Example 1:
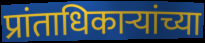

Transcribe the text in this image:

प्रांताधिकाऱ्यांच्या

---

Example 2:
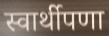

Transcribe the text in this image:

स्वार्थीपणा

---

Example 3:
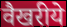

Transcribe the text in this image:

वैखरीये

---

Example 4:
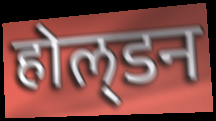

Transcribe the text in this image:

होल्डन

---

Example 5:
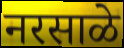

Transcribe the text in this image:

नरसाळे